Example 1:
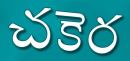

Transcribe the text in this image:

చకెర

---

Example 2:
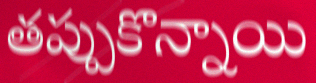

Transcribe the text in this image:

తప్పుకొన్నాయి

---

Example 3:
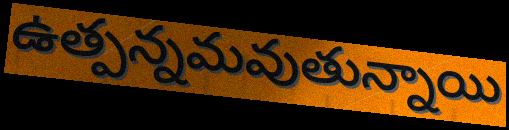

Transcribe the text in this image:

ఉత్పన్నమవుతున్నాయి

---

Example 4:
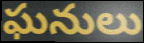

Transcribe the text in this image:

ఘనులు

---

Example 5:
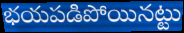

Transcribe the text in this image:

భయపడిపోయినట్టు